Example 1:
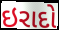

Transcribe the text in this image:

ઇરાદો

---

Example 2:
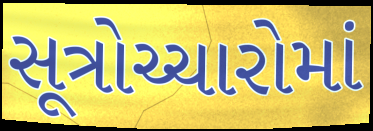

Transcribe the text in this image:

સૂત્રોચ્ચારોમાં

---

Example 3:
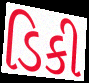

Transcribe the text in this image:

ડિકી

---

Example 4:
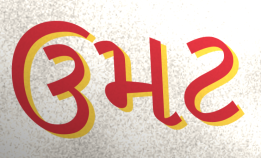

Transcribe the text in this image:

ઉમટ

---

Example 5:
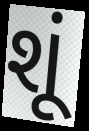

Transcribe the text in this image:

શૂં